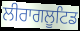
ਲੀਰਾਗਲੂਟਿਡ